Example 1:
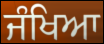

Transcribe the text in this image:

ਜੰਖਿਆ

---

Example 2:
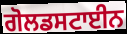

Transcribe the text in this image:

ਗੋਲਡਸਟਾਈਨ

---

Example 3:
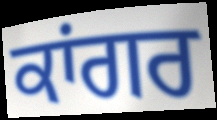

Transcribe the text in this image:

ਕਾਂਗਰ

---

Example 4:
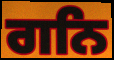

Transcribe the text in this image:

ਗਨਿ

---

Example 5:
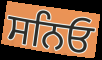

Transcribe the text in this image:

ਸਨਿਓ